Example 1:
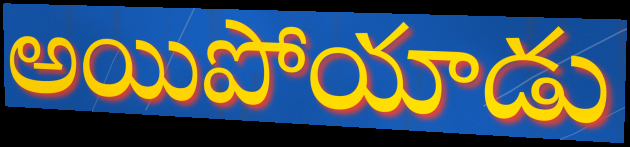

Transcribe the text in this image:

అయిపోయాడు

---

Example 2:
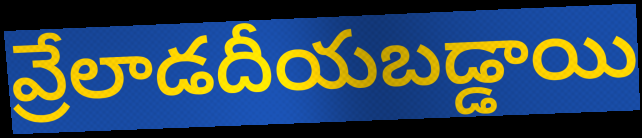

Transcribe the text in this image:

వ్రేలాడదీయబడ్డాయి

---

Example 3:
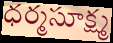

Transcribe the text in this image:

ధర్మసూక్ష్మ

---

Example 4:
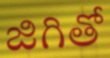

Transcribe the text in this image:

జిగితో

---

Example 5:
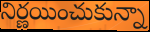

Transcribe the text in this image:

నిర్ణయించుకున్నా